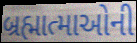
બ્રહ્માત્માઓની